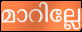
മാറില്ലേ